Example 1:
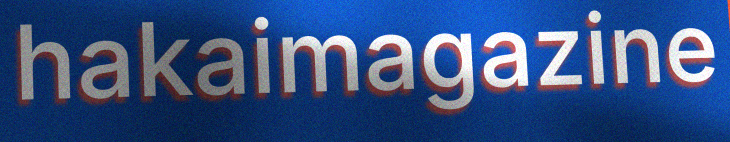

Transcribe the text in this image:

hakaimagazine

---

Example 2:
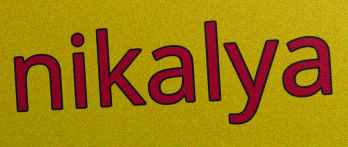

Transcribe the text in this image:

nikalya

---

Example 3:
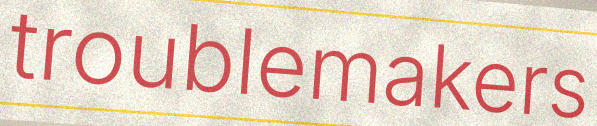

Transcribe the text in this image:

troublemakers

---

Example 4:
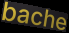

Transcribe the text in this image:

bache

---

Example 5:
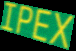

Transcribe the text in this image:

IPEX